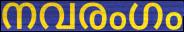
നവരംഗം